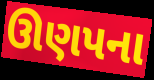
ઊણપના